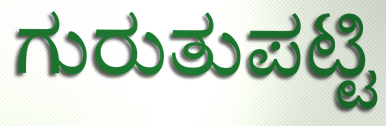
ಗುರುತುಪಟ್ಟಿ